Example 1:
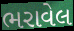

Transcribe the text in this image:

ભરાવેલ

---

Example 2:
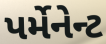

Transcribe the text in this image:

પર્મેનેન્ટ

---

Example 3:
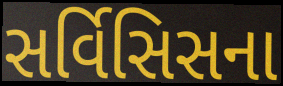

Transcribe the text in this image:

સર્વિસિસના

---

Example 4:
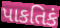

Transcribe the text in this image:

પાકતિકં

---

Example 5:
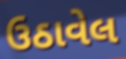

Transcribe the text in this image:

ઉઠાવેલ